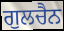
ਗੁਲਚੈਨ